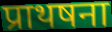
प्राथषना